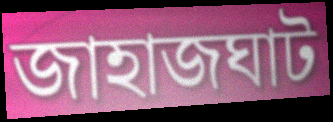
জাহাজঘাট